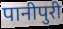
पानीपुरी